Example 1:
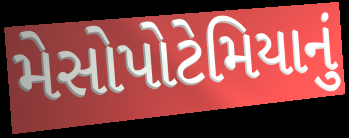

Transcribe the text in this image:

મેસોપોટેમિયાનું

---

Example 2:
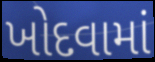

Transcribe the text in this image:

ખોદવામાં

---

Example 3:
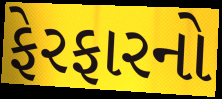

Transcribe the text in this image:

ફેરફારનો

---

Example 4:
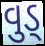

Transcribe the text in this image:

વુડ્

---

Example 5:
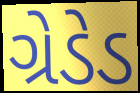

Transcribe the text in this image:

ગ્રેડેડ